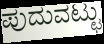
ಪುದುವಟ್ಟು